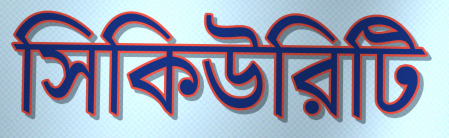
সিকিউরিটি